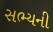
સભ્યની